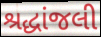
શ્રદ્ધાંજલી